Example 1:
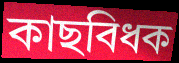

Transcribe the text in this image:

কাছবিধক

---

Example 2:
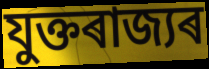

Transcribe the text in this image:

যুক্তৰাজ্যৰ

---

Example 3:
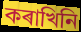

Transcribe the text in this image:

কৰাখিনি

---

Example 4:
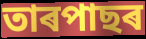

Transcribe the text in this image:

তাৰপাছৰ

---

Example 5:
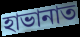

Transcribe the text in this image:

হাভানাত